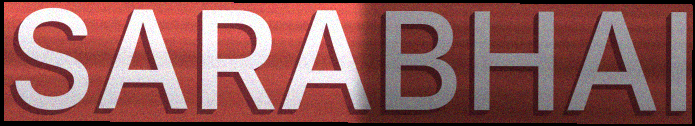
SARABHAI